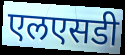
एलएसडी